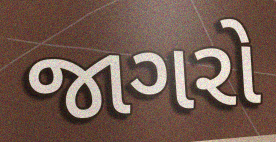
જાગરો